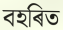
বহৰিত